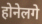
होनेलगे